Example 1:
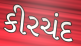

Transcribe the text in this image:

કીરચંદ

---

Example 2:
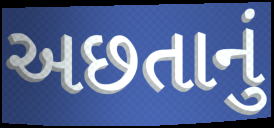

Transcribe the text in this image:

અછતાનું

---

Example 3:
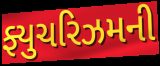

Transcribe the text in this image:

ફ્યુચરિઝમની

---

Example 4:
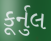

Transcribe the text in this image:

કૂર્નુલ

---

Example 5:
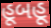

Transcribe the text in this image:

હૂબહૂ